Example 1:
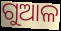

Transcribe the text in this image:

ଗୁଆଳ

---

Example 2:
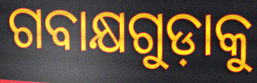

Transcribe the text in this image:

ଗବାକ୍ଷଗୁଡ଼ାକୁ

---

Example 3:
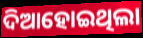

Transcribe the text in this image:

ଦିଆହୋଇଥିଲା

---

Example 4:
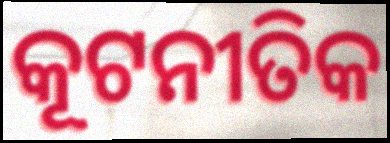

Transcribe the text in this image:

କୂଟନୀତିକ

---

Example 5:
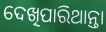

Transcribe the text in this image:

ଦେଖିପାରିଥାନ୍ତା